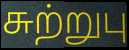
சுற்றுபு